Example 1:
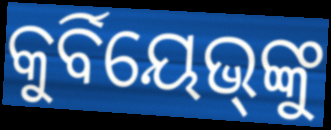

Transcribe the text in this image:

କୁର୍ବିୟେଭ୍‌ଙ୍କୁ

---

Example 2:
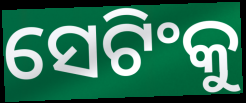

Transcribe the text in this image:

ସେଟିଂକୁ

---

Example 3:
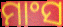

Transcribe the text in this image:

ମାଂସ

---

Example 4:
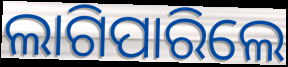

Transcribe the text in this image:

ଲାଗିପାରିଲେ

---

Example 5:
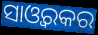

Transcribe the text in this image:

ସାଓ୍ୱରକର